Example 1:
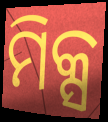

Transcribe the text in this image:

ମିକ୍ସ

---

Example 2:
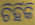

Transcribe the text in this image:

ଚିହିଁକି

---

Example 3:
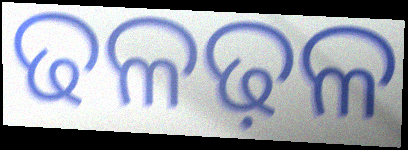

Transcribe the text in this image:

ଢଳଢ଼ଳ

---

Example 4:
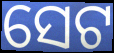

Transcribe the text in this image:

ସେଟ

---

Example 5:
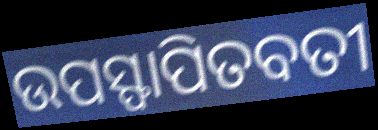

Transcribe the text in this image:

ଉପସ୍ଫାପିତବତୀ